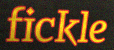
fickle